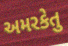
અમરકેતુ